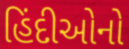
હિંદીઓનો